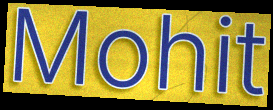
Mohit